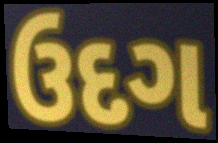
ઉદગ